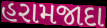
હરામજાદા